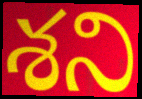
శని